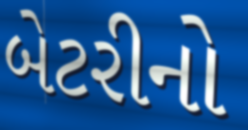
બેટરીનો